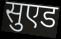
सुएड